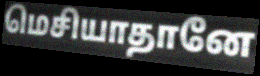
மெசியாதானே